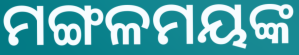
ମଙ୍ଗଳମୟଙ୍କ